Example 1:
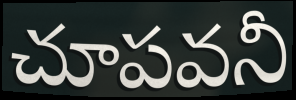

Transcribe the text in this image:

చూపవనీ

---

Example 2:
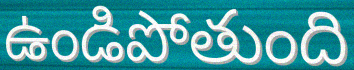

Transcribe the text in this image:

ఉండిపోతుంది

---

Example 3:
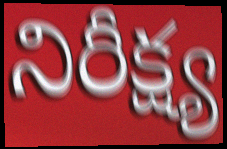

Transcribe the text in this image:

నిరీక్ష్య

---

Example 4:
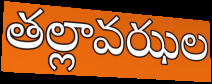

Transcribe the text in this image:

తల్లావఝల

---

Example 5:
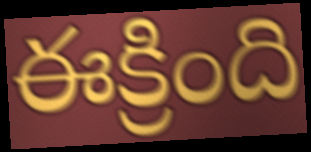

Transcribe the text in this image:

ఈక్రింది